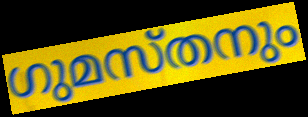
ഗുമസ്തനും